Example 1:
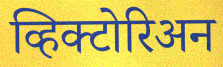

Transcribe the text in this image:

व्हिक्टोरिअन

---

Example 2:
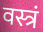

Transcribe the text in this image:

वस्त्रं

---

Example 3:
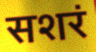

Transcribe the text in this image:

सशरं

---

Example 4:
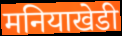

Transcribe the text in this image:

मनियाखेडी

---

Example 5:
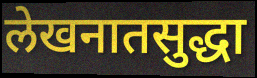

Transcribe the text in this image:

लेखनातसुद्धा